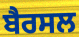
ਬੈਰਸਲ